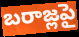
బరాజ్లపై